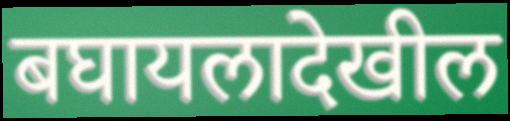
बघायलादेखील